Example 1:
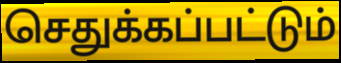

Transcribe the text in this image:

செதுக்கப்பட்டும்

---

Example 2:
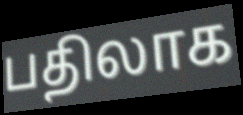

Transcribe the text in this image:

பதிலாக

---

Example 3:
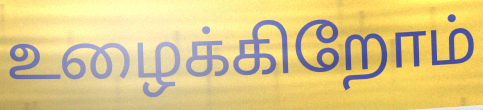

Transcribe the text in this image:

உழைக்கிறோம்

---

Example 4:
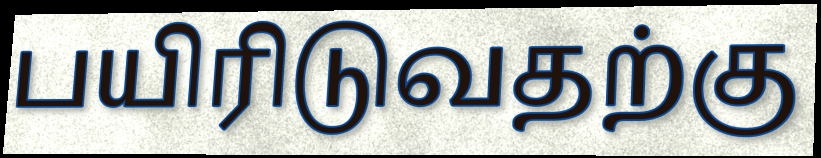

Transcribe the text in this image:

பயிரிடுவதற்கு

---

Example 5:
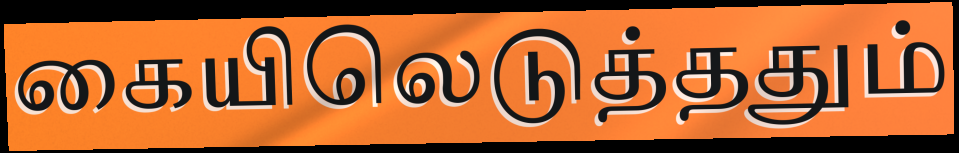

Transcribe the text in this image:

கையிலெடுத்ததும்